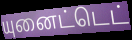
யுனைட்டெட்